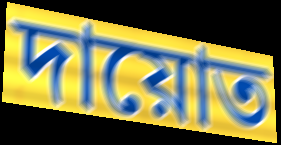
দায়োত